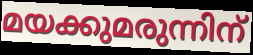
മയക്കുമരുന്നിന്